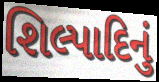
શિલ્પાદિનું